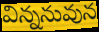
విన్ననువున